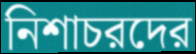
নিশাচরদের